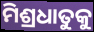
ମିଶ୍ରଧାତୁକୁ